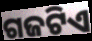
ଗଜଟିଏ